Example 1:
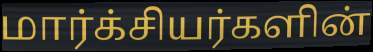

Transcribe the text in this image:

மார்க்சியர்களின்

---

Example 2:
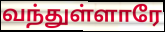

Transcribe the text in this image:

வந்துள்ளாரே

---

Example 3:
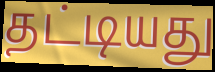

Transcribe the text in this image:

தட்டியது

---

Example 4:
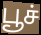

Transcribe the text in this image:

பூச்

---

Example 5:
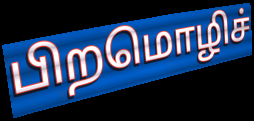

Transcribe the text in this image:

பிறமொழிச்